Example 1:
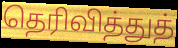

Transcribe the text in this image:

தெரிவித்துத்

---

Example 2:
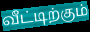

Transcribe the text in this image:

வீட்டிற்கும்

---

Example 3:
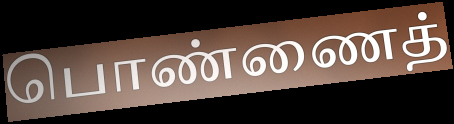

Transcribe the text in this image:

பொண்ணைத்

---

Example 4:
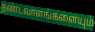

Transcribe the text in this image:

தண்டவாளங்களையும்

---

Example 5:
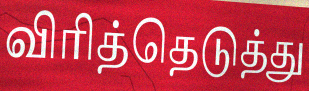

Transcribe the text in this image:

விரித்தெடுத்து